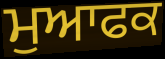
ਮੁਆਫਕ